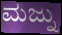
ಮಜ್ನು